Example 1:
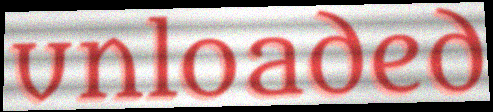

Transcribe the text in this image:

unloaded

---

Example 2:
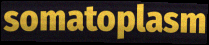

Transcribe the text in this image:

somatoplasm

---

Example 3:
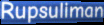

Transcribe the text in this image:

Rupsuliman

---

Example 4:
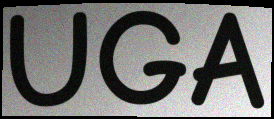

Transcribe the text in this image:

UGA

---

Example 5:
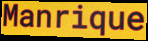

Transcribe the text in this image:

Manrique